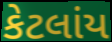
કેટલાંય